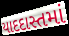
યાદદાસ્તમાં